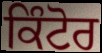
ਕਿੰਟੋਰ